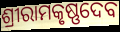
ଶ୍ରୀରାମକୃଷ୍ଣଦେବ